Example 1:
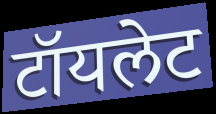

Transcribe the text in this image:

टॉयलेट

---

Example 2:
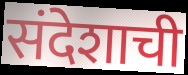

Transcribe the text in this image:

संदेशाची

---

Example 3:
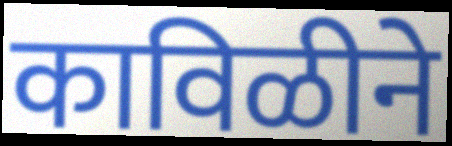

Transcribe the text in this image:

काविळीने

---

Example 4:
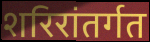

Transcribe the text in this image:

शरिरांतर्गत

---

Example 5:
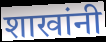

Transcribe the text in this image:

शाखांनी